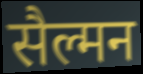
सैल्मन